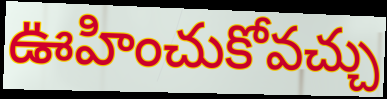
ఊహించుకోవచ్చు